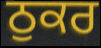
ਠੁਕਰ